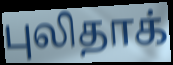
புலிதாக்